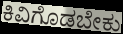
ಕಿವಿಗೊಡಬೇಕು